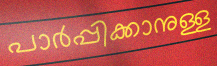
പാർപ്പിക്കാനുള്ള